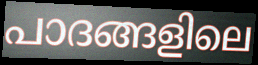
പാദങ്ങളിലെ